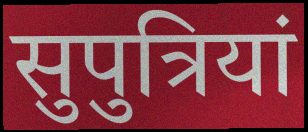
सुपुत्रियां